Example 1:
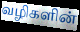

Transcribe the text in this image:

வழிகளின்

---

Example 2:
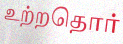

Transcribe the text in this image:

உற்றதொர்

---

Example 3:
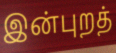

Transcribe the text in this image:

இன்புறத்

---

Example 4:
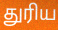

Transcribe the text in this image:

துரிய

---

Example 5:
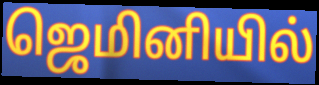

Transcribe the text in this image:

ஜெமினியில்